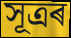
সূত্ৰৰ